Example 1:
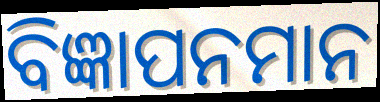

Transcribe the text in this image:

ବିଜ୍ଞାପନମାନ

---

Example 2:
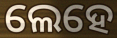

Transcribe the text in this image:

ଲେହେ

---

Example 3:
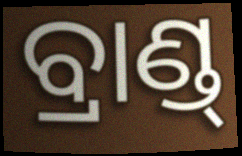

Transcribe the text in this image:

ବ୍ରାଣ୍ଡ୍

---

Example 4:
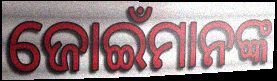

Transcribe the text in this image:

ଜୋଇଁମାନଙ୍କ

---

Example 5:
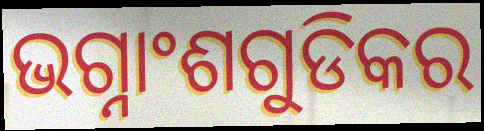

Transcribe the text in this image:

ଭଗ୍ନାଂଶଗୁଡିକର